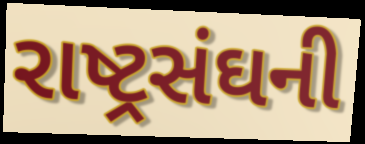
રાષ્ટ્રસંઘની